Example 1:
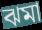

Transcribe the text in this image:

ঝমা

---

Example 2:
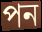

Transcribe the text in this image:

পন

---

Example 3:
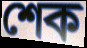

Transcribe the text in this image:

শেক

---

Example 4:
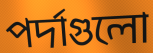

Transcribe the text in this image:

পর্দাগুলো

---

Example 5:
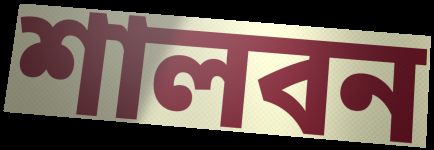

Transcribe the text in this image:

শালবন